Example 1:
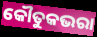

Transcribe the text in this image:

କୌତୁକଭରା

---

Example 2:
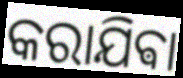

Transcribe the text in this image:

କରାଯିଵା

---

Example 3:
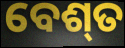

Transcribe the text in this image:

ବେଶ୍‍ତ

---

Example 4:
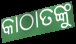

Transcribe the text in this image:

କାଠାତଙ୍କୁ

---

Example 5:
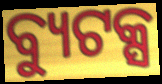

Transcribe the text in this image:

ବ୍ୟୁଟକ୍ସ